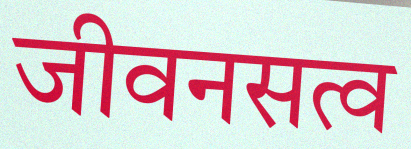
जीवनसत्व